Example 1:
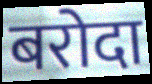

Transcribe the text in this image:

बरोदा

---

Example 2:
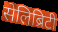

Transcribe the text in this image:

सेलिब्रिटी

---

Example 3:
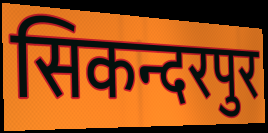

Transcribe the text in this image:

सिकन्दरपुर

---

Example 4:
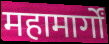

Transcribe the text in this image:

महामार्गों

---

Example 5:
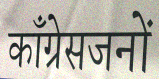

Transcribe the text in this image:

कॉंग्रेसजनों